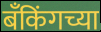
बँकिंगच्या